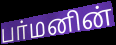
பர்மனின்